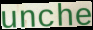
unche